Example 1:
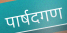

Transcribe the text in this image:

पार्षदगण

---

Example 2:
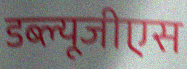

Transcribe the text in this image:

डब्ल्यूजीएस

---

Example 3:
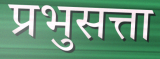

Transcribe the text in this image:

प्रभुसत्ता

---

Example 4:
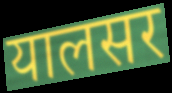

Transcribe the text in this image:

यालसर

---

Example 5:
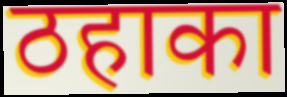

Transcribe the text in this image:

ठहाका